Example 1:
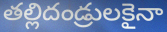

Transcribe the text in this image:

తల్లిదండ్రులకైనా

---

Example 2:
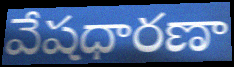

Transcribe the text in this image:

వేషధారణా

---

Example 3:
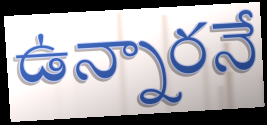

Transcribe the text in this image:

ఉన్నారనే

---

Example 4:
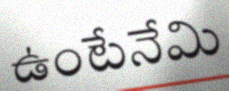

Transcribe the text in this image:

ఉంటేనేమి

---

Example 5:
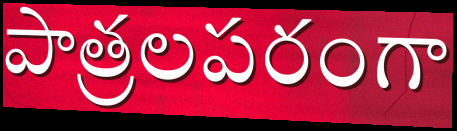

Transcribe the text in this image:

పాత్రలపరంగా